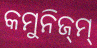
କମୁନିଜ୍‌ମ୍